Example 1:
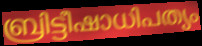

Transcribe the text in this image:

ബ്രിട്ടീഷാധിപത്യം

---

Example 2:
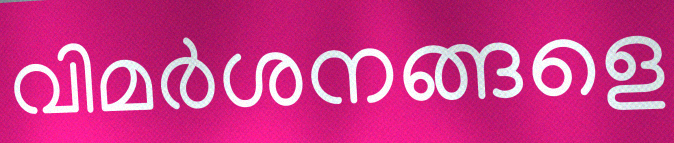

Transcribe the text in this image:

വിമർശനങ്ങളെ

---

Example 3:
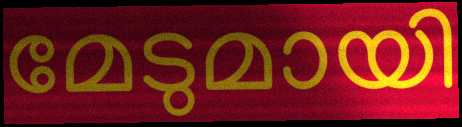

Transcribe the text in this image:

മേടുമായി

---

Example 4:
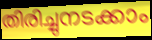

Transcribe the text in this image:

തിരിച്ചുനടക്കാം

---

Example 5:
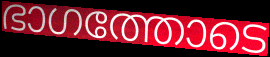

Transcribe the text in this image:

ഭാഗത്തോടെ